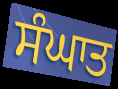
ਸੰਘਾਤ